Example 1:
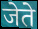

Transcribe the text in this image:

जेते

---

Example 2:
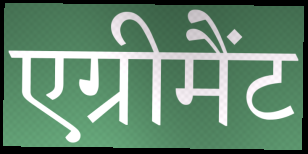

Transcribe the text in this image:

एग्रीमैंट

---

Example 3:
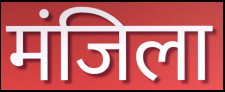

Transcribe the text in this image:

मंजिला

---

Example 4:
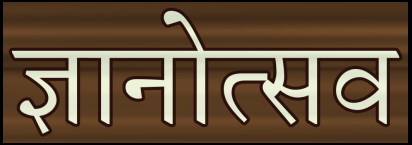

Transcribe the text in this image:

ज्ञानोत्सव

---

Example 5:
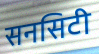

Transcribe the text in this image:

सनसिटी